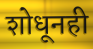
शोधूनही